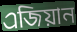
এজিয়ান